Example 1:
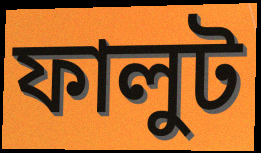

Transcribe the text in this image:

ফালুট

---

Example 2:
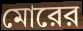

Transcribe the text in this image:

মোরের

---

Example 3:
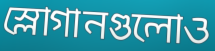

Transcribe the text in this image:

স্লোগানগুলোও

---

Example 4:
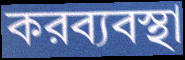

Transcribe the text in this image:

করব্যবস্থা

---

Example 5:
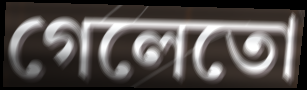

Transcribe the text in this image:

গেলেতো